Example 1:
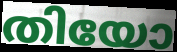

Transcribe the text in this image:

തിയോ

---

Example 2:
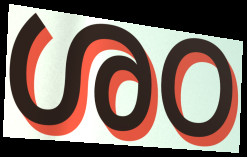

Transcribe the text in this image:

ശഠ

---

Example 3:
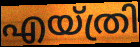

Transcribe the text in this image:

എയ്ത്രി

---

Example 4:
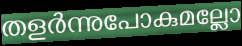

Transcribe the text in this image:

തളർന്നുപോകുമല്ലോ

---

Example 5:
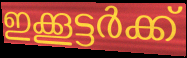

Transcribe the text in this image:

ഇക്കൂട്ടർക്ക്